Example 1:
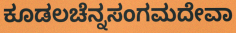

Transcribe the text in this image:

ಕೂಡಲಚೆನ್ನಸಂಗಮದೇವಾ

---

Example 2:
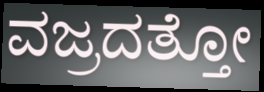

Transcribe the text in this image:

ವಜ್ರದತ್ತೋ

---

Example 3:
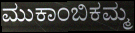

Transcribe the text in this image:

ಮುಕಾಂಬಿಕಮ್ಮ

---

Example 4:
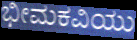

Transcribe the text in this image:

ಭೀಮಕವಿಯು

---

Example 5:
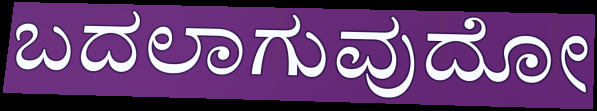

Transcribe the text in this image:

ಬದಲಾಗುವುದೋ